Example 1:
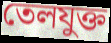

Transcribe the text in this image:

তেলযুক্ত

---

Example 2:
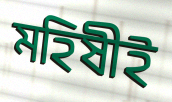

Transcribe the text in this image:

মহিষীই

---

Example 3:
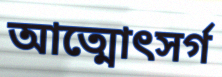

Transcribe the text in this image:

আত্মোৎসর্গ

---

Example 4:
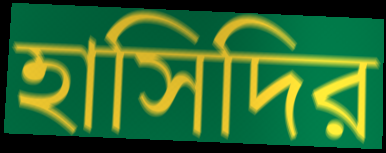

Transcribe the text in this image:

হাসিদির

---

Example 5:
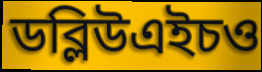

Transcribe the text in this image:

ডব্লিউএইচও